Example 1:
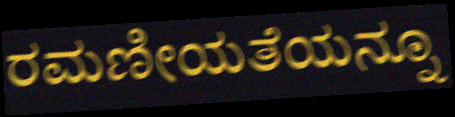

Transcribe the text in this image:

ರಮಣೀಯತೆಯನ್ನೂ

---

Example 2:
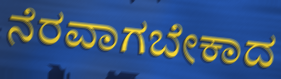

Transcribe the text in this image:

ನೆರವಾಗಬೇಕಾದ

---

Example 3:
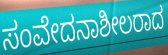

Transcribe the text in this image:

ಸಂವೇದನಾಶೀಲರಾದ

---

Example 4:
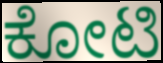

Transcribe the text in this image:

ಕೋಟಿ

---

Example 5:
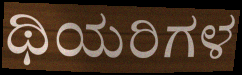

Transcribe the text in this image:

ಥಿಯರಿಗಳ